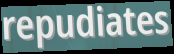
repudiates